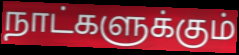
நாட்களுக்கும்